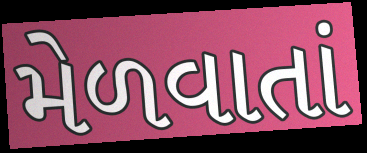
મેળવાતાં